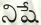
నిషే